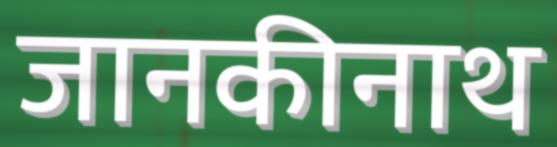
जानकीनाथ